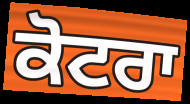
ਕੋਟਰਾ